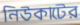
নিউকাটের